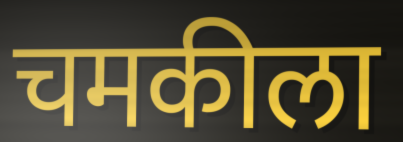
चमकीला